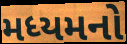
મધ્યમનો